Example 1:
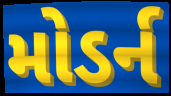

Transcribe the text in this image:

મોડર્ન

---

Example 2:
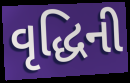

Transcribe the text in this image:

વૃદ્ધિની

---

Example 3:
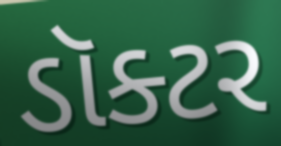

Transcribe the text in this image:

ડૉક્ટર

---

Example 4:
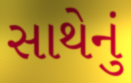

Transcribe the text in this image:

સાથેનું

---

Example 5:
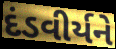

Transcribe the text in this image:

દંડવીર્યને